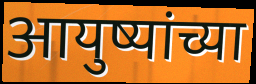
आयुष्यांच्या